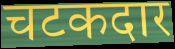
चटकदार